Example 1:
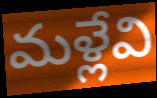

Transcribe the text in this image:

మళ్లేవి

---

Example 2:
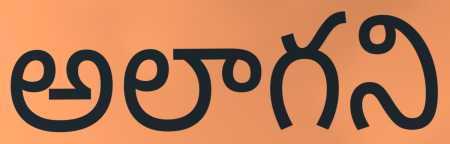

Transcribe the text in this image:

అలాగని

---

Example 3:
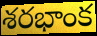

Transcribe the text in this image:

శరభాంక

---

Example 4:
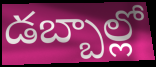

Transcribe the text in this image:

డబ్బాల్లో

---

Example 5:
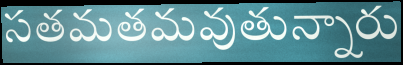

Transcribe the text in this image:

సతమతమవుతున్నారు